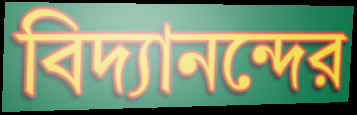
বিদ্যানন্দের